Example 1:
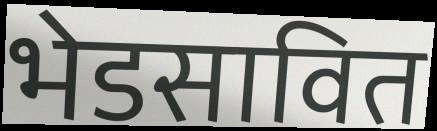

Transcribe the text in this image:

भेडसावित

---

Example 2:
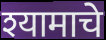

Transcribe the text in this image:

श्यामाचे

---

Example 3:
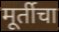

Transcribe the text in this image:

मूर्तीचा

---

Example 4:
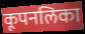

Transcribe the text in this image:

कूपनलिका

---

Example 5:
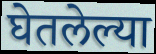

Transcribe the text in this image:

घेतलेल्या